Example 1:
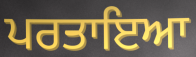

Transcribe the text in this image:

ਪਰਤਾਇਆ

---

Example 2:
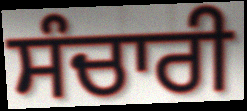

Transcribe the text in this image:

ਸੰਚਾਰੀ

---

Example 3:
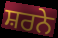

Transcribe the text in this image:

ਸ਼ਰਨੇ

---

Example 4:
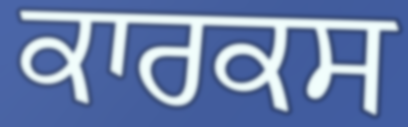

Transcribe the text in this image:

ਕਾਰਕਸ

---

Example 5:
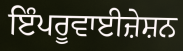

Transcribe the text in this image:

ਇੰਪਰੂਵਾਈਜ਼ੇਸ਼ਨ